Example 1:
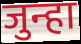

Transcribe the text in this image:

जुन्हा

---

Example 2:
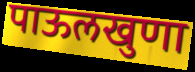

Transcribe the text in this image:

पाऊलखुणा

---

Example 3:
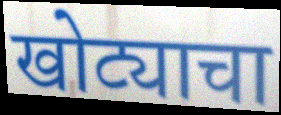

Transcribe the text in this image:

खोट्याचा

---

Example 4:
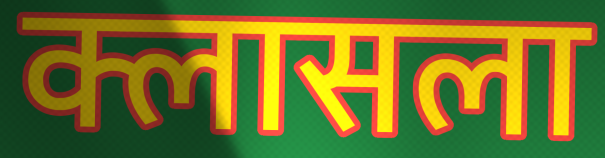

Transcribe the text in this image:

क्लासला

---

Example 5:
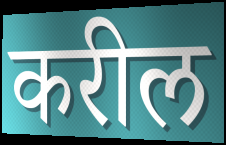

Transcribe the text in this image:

करील